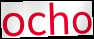
ocho